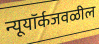
न्यूयॉर्कजवळील